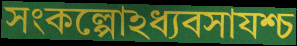
সংকল্পোঽধ্যবসাযশ্চ